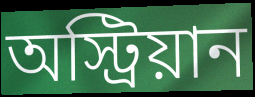
অস্ট্রিয়ান